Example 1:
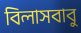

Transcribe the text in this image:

বিলাসবাবু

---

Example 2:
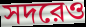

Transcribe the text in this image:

সদরেও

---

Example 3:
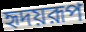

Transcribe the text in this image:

হৃদয়রূপ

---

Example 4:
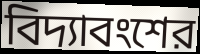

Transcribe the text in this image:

বিদ্যাবংশের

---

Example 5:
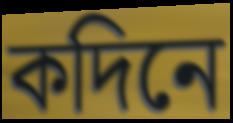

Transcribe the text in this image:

কদিনে